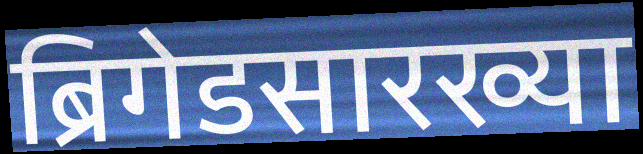
ब्रिगेडसारख्या